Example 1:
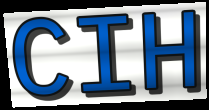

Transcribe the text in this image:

CIH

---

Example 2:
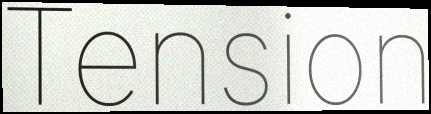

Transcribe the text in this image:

Tension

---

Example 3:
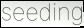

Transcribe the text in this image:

seeding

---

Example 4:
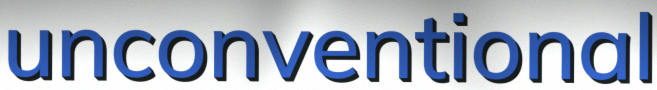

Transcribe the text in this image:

unconventional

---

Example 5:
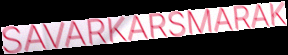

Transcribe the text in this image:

SAVARKARSMARAK